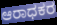
ಆರಾಧಕರ